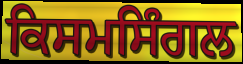
ਕਿਸਮਸਿੰਗਲ